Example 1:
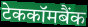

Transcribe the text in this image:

टेककॉमबैंक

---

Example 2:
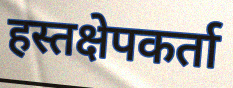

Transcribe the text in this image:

हस्तक्षेपकर्ता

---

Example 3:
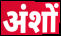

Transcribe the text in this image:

अंशों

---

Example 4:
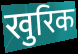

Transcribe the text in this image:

खुरिक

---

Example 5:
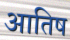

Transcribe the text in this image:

आतिष